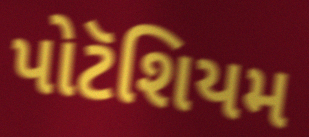
પોટૅશિયમ